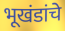
भूखंडांचे